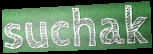
suchak